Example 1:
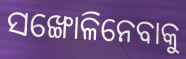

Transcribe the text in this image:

ସଙ୍ଖୋଳିନେବାକୁ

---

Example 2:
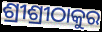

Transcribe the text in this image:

ଶ୍ରୀଶ୍ରୀଠାକୁର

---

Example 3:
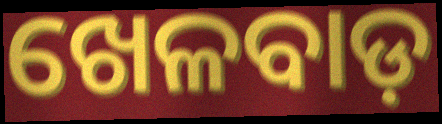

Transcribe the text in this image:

ଖେଳବାଡ଼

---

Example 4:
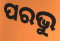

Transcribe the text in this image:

ପରଭୁ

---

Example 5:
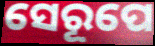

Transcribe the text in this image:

ସେରୂପେ